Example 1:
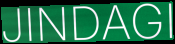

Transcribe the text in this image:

JINDAGI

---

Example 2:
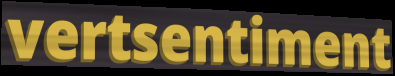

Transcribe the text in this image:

vertsentiment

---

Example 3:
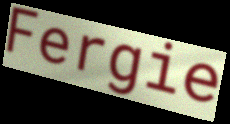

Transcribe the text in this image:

Fergie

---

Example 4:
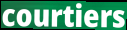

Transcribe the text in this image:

courtiers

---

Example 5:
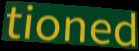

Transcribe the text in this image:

tioned